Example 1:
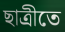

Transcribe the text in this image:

ছাত্রীতে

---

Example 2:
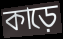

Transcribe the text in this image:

কাড়ে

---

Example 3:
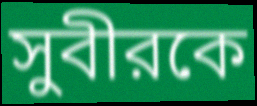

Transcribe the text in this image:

সুবীরকে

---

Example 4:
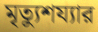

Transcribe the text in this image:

মৃত্যুশয্যার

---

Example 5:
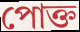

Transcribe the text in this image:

পোক্ত